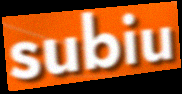
subiu